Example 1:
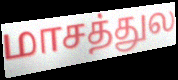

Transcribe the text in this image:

மாசத்துல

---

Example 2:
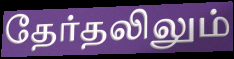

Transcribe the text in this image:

தேர்தலிலும்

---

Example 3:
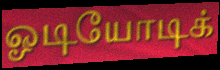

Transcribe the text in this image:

ஓடியோடிக்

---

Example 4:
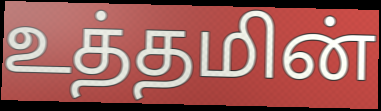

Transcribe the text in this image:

உத்தமின்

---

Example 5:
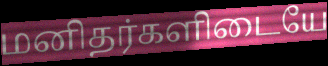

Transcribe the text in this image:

மனிதர்களிடையே